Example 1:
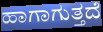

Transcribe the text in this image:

ಹಾಗಾಗುತ್ತದೆ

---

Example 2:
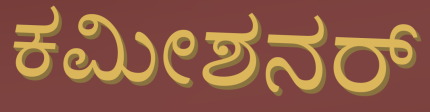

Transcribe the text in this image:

ಕಮೀಶನರ್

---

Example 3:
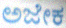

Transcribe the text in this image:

ಅಜೇಕ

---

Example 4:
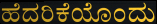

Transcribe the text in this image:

ಹೆದರಿಕೆಯೊಂದು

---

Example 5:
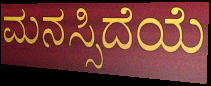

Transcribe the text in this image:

ಮನಸ್ಸಿದೆಯೆ